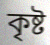
কৃষ্ট